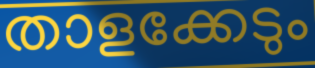
താളക്കേടും